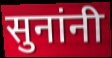
सुनांनी